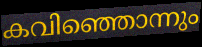
കവിഞ്ഞൊന്നും